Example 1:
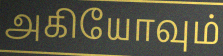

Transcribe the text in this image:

அகியோவும்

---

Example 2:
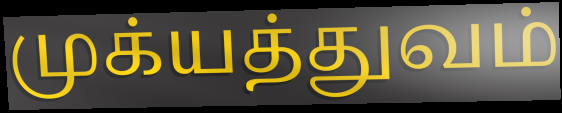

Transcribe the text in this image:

முக்யத்துவம்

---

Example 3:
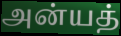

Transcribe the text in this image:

அன்யத்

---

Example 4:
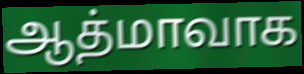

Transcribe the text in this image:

ஆத்மாவாக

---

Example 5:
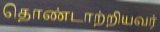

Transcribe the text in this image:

தொண்டாற்றியவர்